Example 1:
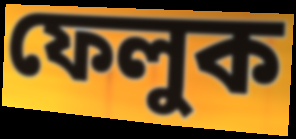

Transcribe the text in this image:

ফেলুক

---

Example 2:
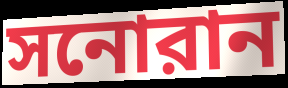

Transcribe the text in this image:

সনোরান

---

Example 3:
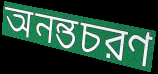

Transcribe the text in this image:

অনন্তচরণ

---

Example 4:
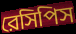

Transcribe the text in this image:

রেসিপিস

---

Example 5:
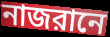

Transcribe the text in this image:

নাজরানে